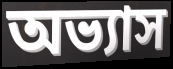
অভ্যাস